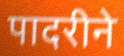
पादरीने